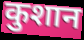
कुशान